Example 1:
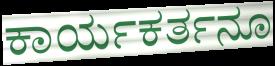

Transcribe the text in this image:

ಕಾರ್ಯಕರ್ತನೂ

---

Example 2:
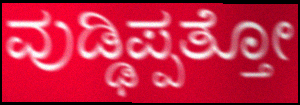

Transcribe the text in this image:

ವುಡ್ಢಿಪ್ಪತ್ತೋ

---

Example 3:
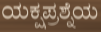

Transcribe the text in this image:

ಯಕ್ಷಪ್ರಶ್ನೆಯ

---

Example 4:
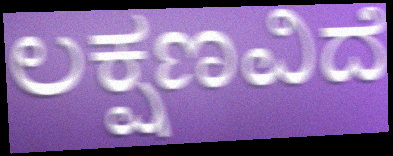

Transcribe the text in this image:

ಲಕ್ಷಣವಿದೆ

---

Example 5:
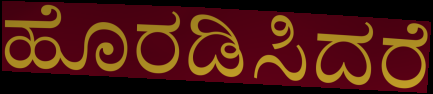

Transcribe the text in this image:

ಹೊರಡಿಸಿದರೆ